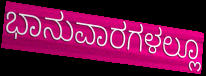
ಭಾನುವಾರಗಳಲ್ಲೂ